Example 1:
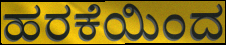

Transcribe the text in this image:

ಹರಕೆಯಿಂದ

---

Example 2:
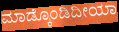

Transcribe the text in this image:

ಮಾಡ್ಕೊಂಡಿದೀಯಾ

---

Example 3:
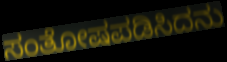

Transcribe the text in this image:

ಸಂತೋಷಪಡಿಸಿದನು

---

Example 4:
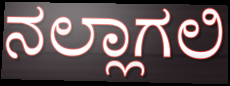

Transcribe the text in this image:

ನಲ್ಲಾಗಲಿ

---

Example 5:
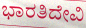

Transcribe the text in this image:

ಭಾರತಿದೇವಿ